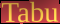
Tabu